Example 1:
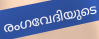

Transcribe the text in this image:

രംഗവേദിയുടെ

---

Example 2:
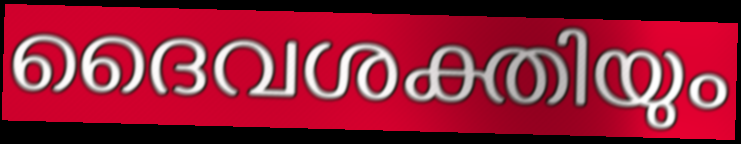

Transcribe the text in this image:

ദൈവശക്തിയും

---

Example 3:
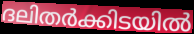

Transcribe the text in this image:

ദലിതർക്കിടയിൽ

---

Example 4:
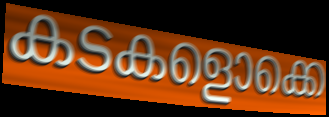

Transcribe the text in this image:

കടകളൊക്കെ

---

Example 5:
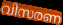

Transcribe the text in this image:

വിസരണ